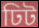
ঢিট